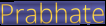
Prabhate